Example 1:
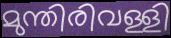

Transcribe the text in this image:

മുന്തിരിവള്ളി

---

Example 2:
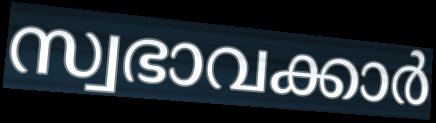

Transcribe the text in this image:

സ്വഭാവക്കാർ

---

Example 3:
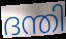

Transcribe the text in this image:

ദന്തി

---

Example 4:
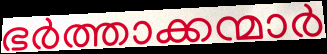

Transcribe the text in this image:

ഭർത്താക്കന്മാർ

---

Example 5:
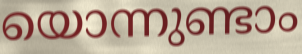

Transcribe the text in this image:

യൊന്നുണ്ടാം